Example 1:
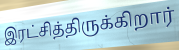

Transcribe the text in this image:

இரட்சித்திருக்கிறார்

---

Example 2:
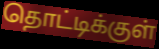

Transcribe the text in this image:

தொட்டிக்குள்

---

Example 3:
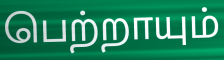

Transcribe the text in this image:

பெற்றாயும்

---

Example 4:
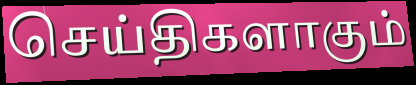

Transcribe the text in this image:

செய்திகளாகும்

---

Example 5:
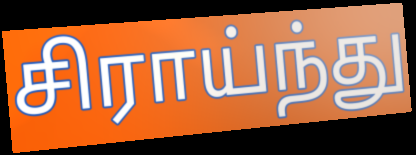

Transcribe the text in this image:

சிராய்ந்து